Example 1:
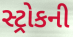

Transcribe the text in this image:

સ્ટ્રોકની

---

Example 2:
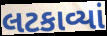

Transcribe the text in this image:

લટકાવ્યાં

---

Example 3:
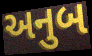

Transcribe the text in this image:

અનુબ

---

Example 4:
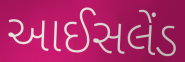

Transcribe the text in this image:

આઈસલેંડ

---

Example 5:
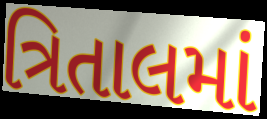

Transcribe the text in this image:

ત્રિતાલમાં